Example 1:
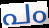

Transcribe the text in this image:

പം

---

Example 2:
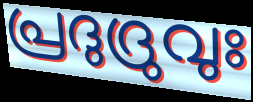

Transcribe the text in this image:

പ്രദുദ്രുവുഃ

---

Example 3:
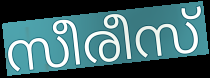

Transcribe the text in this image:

സീരീസ്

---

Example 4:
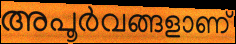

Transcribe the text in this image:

അപൂർവങ്ങളാണ്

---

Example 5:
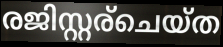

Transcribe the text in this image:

രജിസ്റ്റര്ചെയ്ത